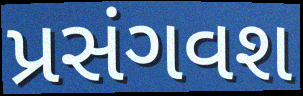
પ્રસંગવશ